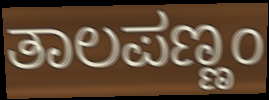
ತಾಲಪಣ್ಣಂ